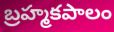
బ్రహ్మకపాలం